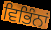
ਵਿਭਿੰਨਾਂ